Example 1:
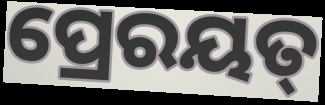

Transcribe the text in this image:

ପ୍ରେରୟତ୍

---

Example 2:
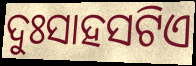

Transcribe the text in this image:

ଦୁଃସାହସଟିଏ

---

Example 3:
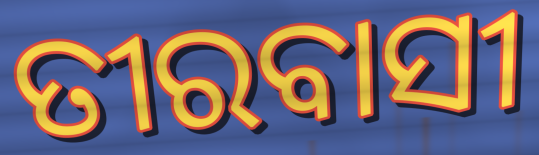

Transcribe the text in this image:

ତୀରବାସୀ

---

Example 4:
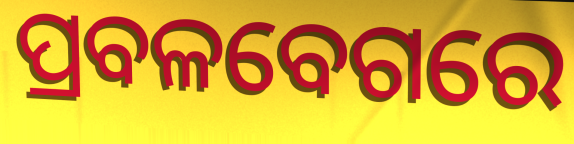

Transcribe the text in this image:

ପ୍ରବଳବେଗରେ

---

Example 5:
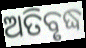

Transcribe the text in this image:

ଅତିବୃଦ୍ଧ